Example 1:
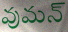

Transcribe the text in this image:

వుమన్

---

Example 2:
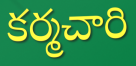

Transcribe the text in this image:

కర్మచారి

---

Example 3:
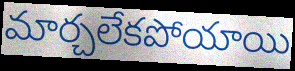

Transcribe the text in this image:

మార్చలేకపోయాయి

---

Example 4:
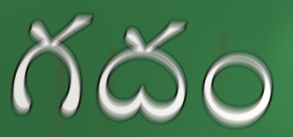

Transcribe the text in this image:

గదం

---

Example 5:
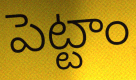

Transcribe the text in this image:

పెట్టాం